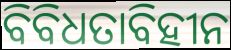
ବିବିଧତାବିହୀନ